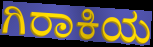
ಗಿರಾಕಿಯ